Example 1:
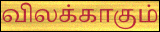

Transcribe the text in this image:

விலக்காகும்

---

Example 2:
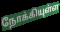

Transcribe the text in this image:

நோக்கியுள்ள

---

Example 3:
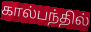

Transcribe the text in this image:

கால்பந்தில்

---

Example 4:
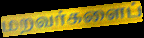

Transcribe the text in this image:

மறவர்களைப்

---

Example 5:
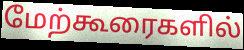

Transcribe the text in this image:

மேற்கூரைகளில்